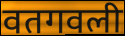
वतगवली